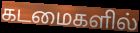
கடமைகளில்